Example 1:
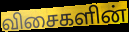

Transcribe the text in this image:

விசைகளின்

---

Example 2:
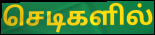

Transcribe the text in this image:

செடிகளில்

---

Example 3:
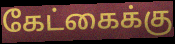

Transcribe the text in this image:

கேட்கைக்கு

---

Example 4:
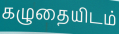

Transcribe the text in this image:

கழுதையிடம்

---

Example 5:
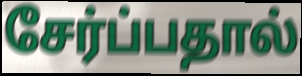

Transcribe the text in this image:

சேர்ப்பதால்